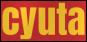
cyuta